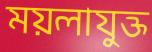
ময়লাযুক্ত